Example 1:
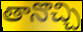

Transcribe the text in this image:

తానొచ్చి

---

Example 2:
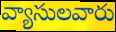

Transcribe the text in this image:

వ్యాసులవారు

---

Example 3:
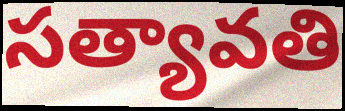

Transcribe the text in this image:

సత్యావతి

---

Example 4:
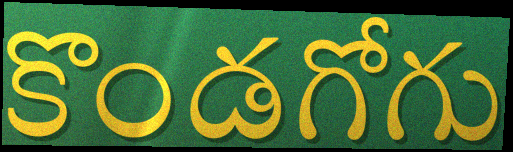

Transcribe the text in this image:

కొండగోగు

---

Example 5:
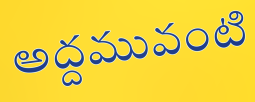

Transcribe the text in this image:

అద్దమువంటి